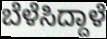
ಬೆಳೆಸಿದ್ದಾಳೆ